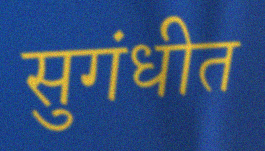
सुगंधीत